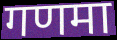
गणमा